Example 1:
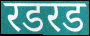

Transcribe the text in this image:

रडरड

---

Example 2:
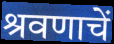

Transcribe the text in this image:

श्रवणाचें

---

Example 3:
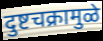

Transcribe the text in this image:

दुष्टचक्रामुळे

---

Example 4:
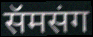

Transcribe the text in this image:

सॅमसंग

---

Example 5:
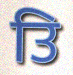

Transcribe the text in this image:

उि